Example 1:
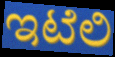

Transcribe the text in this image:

ಇಟೆಲಿ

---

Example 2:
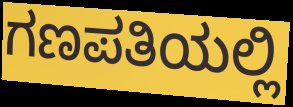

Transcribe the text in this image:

ಗಣಪತಿಯಲ್ಲಿ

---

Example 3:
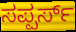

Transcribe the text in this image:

ಸಪ್ಪರ್ಸ್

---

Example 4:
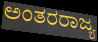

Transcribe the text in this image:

ಅಂತರರಾಜ್ಯ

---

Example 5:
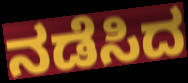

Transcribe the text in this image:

ನಡೆಸಿದ